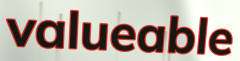
valueable